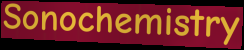
Sonochemistry